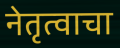
नेतृत्वाचा